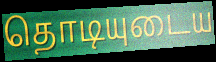
தொடியுடைய